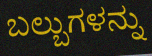
ಬಲ್ಬುಗಳನ್ನು